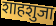
शाहशुजा